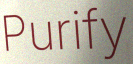
Purify